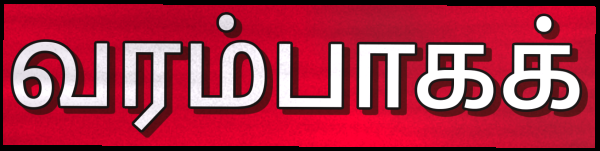
வரம்பாகக்